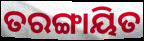
ତରଙ୍ଗାୟିତ